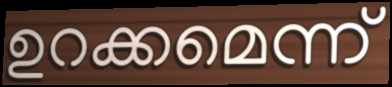
ഉറക്കമെന്ന്